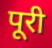
पूरी